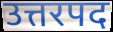
उत्तरपद